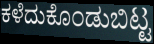
ಕಳೆದುಕೊಂಡುಬಿಟ್ಟ